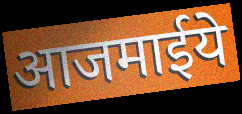
आजमाईये